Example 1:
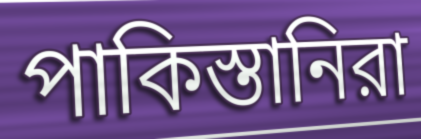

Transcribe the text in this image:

পাকিস্তানিরা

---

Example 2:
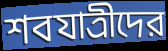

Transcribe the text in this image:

শবযাত্রীদের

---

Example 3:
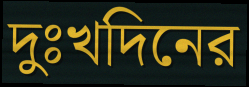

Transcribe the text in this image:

দুঃখদিনের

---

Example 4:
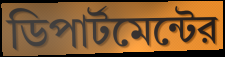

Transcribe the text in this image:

ডিপার্টমেন্টের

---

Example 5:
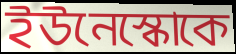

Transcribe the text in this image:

ইউনেস্কোকে